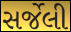
સર્જેલી